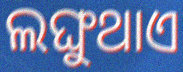
ଲଙ୍ଘୁଥାଏ